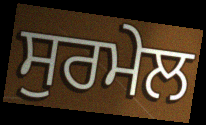
ਸੁਰਮੇਲ